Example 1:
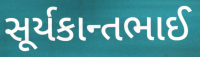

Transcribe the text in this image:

સૂર્યકાન્તભાઈ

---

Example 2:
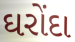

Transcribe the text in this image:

ઘરોંદા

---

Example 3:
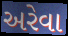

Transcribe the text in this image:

અરેવા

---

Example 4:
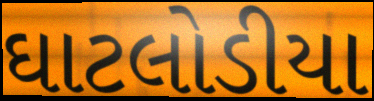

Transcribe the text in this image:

ઘાટલોડીયા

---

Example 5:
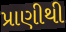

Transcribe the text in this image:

પ્રાણીથી